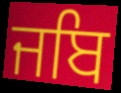
ਜਬਿ